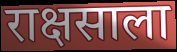
राक्षसाला